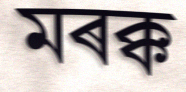
মৰক্ক